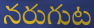
నరుగుట